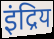
इंद्रिय